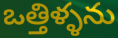
ఒత్తిళ్ళను